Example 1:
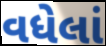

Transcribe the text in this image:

વધેલાં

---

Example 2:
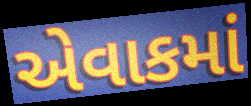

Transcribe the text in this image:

એવાકમાં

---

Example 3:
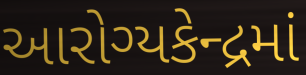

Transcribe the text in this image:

આરોગ્યકેન્દ્રમાં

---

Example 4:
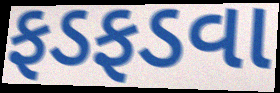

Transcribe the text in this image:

ફડફડવા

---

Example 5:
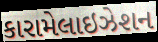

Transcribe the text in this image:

કારામેલાઇઝેશન